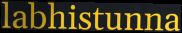
labhistunna